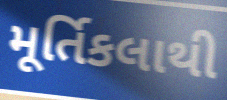
મૂર્તિકલાથી